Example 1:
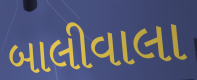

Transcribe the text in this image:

બાલીવાલા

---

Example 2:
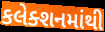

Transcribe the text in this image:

કલેક્શનમાંથી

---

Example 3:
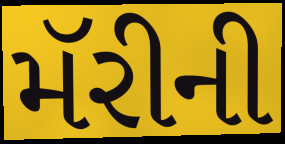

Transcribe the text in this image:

મૅરીની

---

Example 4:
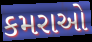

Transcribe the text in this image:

કમરાઓ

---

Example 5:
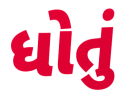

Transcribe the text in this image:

ધોતું